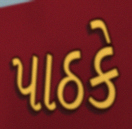
પાઠકે